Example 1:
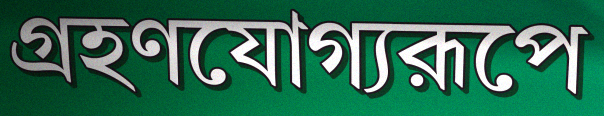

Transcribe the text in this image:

গ্রহণযোগ্যরূপে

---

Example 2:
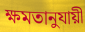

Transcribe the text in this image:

ক্ষমতানুযায়ী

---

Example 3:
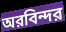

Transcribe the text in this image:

অরবিন্দর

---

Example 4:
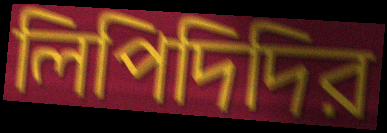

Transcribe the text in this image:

লিপিদিদির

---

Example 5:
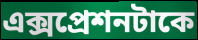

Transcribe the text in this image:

এক্সপ্রেশনটাকে